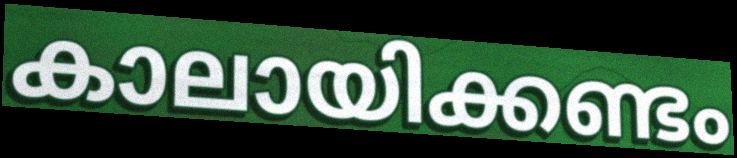
കാലായിക്കണ്ടം